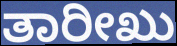
ತಾರೀಖು